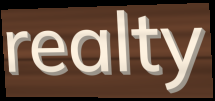
realty